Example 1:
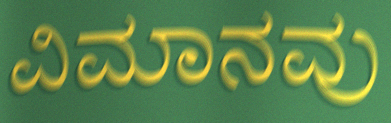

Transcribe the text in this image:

ವಿಮಾನವು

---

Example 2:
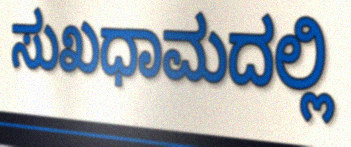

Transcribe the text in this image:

ಸುಖಧಾಮದಲ್ಲಿ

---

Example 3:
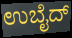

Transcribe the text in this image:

ಉಬೈದ್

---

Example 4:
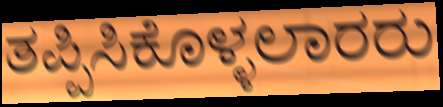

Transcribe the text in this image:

ತಪ್ಪಿಸಿಕೊಳ್ಳಲಾರರು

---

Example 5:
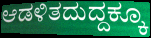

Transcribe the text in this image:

ಆಡಳಿತದುದ್ದಕ್ಕೂ